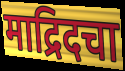
माद्रिदचा